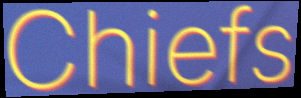
Chiefs